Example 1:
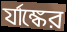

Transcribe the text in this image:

র্যাঙ্কের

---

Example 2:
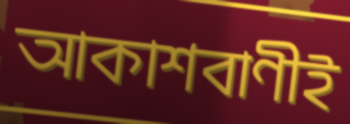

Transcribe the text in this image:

আকাশবাণীই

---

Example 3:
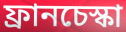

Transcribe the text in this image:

ফ্রানচেস্কা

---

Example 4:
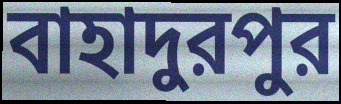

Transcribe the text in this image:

বাহাদুরপুর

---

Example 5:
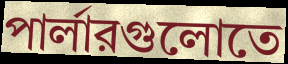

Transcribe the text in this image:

পার্লারগুলোতে